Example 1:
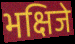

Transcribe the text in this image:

भक्षिजे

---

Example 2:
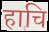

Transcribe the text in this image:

हाचि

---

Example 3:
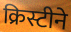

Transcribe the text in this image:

क्रिस्टीने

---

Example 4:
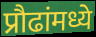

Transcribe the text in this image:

प्रौढांमध्ये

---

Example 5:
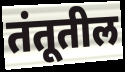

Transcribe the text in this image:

तंतूतील